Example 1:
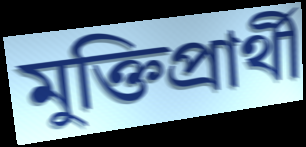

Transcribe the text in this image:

মুক্তিপ্রার্থী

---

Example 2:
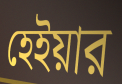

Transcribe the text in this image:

হেইয়ার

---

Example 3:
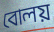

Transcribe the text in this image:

বোলয়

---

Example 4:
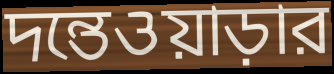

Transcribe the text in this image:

দন্তেওয়াড়ার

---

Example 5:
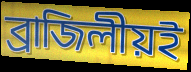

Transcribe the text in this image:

ব্রাজিলীয়ই